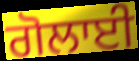
ਗੋਲਾਈ